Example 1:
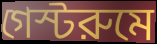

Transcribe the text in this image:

গেস্টরুমে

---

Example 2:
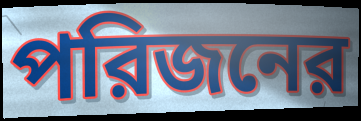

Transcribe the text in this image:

পরিজনের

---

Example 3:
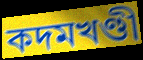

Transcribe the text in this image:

কদমখণ্ডী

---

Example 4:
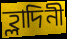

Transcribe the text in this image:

হ্লাদিনী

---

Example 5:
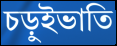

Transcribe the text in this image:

চড়ুইভাতি